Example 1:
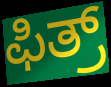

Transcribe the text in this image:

ಫಿತ್ರ್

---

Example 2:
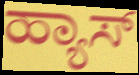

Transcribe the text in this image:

ಹ್ಯಾಸ್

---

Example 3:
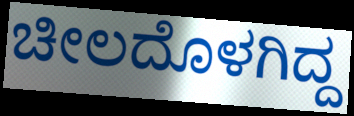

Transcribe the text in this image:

ಚೀಲದೊಳಗಿದ್ದ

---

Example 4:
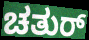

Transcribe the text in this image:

ಚತುರ್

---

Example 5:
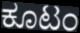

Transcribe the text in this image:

ಕೂಟಂ